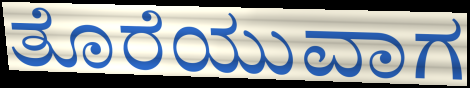
ತೊರೆಯುವಾಗ